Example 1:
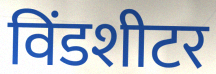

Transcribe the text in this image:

विंडशीटर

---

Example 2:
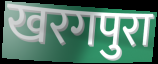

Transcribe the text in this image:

खरगपुरा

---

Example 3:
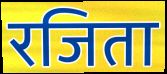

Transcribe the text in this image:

रजिता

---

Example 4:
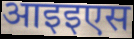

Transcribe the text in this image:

आइइएस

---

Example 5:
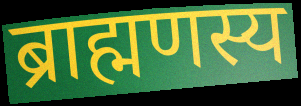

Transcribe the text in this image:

ब्राह्मणस्य